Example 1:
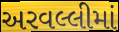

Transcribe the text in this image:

અરવલ્લીમાં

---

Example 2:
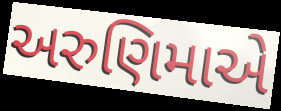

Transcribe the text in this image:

અરુણિમાએ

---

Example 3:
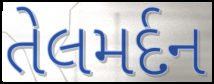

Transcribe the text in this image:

તેલમર્દન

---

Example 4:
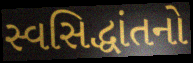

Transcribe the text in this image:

સ્વસિદ્ધાંતનો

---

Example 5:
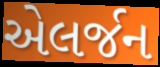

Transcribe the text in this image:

એલર્જન